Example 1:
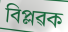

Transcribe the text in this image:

বিপ্লৱক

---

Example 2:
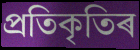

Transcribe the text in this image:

প্ৰতিকৃতিৰ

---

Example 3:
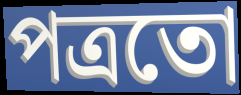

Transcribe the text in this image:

পত্ৰতো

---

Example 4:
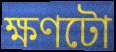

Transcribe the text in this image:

ক্ষণটো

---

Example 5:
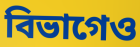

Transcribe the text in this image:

বিভাগেও